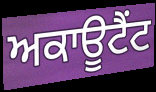
ਅਕਾਊਟੈਂਟ